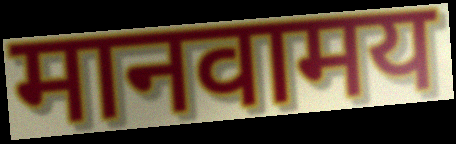
मानवामय